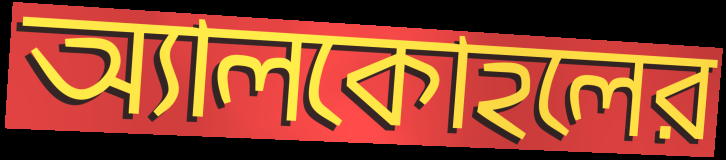
অ্যালকোহলের